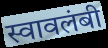
स्वावलंबी